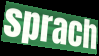
sprach